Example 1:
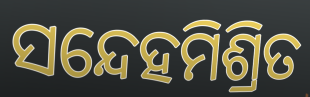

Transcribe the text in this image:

ସନ୍ଦେହମିଶ୍ରିତ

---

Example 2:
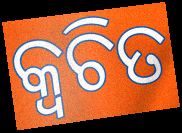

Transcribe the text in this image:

କ୍ବଚିତ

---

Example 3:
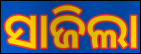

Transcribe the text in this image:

ସାଜିଲା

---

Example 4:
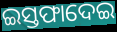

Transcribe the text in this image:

ଇସ୍ତଫାଦେଇ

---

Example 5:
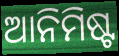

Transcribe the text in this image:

ଆନିମିଷ୍ଟ